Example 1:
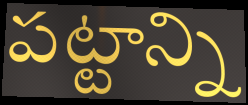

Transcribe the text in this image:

పట్టాన్ని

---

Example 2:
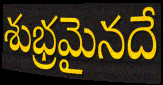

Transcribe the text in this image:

శుభ్రమైనదే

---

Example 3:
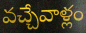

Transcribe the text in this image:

వచ్చేవాళ్లం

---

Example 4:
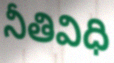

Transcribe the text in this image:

నీతివిధి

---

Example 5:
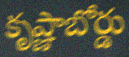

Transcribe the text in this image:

కృష్ణాబోర్డు